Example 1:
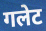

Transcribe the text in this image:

गलेट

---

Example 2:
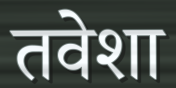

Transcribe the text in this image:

तवेशा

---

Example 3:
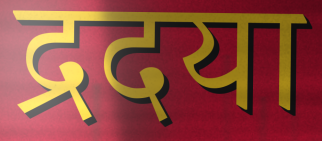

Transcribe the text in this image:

द्रदया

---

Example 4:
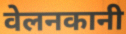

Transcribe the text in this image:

वेलनकानी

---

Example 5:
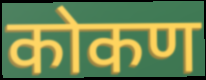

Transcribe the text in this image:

कोकण